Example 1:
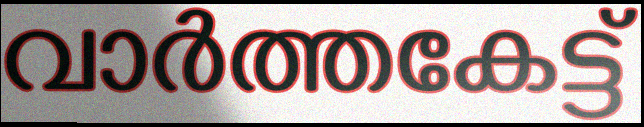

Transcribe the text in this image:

വാർത്തകേട്ട്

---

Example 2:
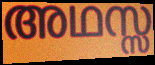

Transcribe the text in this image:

അഥസ്സ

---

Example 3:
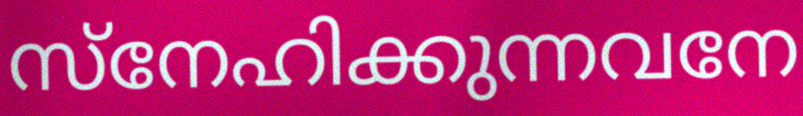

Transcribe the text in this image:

സ്നേഹിക്കുന്നവനേ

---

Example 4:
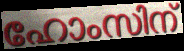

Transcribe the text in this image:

ഹോംസിന്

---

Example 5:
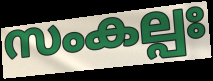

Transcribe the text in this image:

സംകല്പഃ